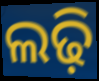
ଲଢ଼ି